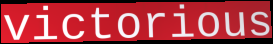
victorious